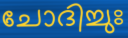
ചോദിച്ചുഃ